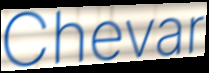
Chevar